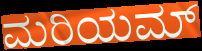
ಮರಿಯಮ್